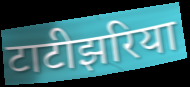
टाटीझरिया